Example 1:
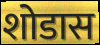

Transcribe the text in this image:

शोडास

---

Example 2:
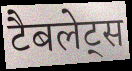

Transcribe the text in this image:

टैबलेट्स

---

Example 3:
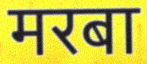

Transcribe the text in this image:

मरबा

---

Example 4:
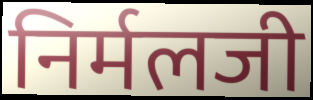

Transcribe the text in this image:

निर्मलजी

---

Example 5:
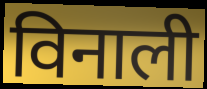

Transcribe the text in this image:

विनाली